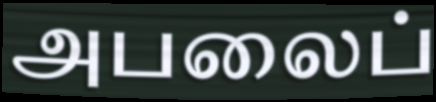
அபலைப்